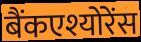
बैंकएश्योरेंस